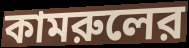
কামরুলের